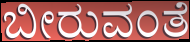
ಬೀರುವಂತೆ